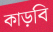
কাড়বি